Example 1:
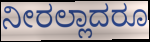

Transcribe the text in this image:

ನೀರಲ್ಲಾದರೂ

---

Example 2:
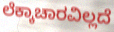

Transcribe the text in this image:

ಲೆಕ್ಕಾಚಾರವಿಲ್ಲದೆ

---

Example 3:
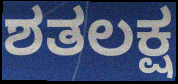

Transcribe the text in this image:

ಶತಲಕ್ಷ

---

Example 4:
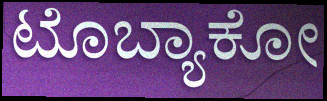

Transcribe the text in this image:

ಟೊಬ್ಯಾಕೋ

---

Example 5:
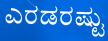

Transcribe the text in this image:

ಎರಡರಷ್ಟು